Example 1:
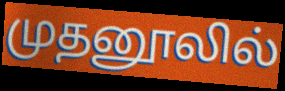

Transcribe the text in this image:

முதனூலில்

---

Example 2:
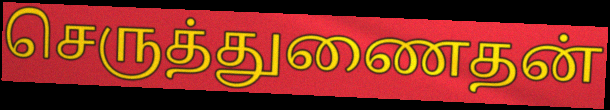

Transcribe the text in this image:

செருத்துணைதன்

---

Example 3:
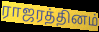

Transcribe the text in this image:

ராஜரத்தினம்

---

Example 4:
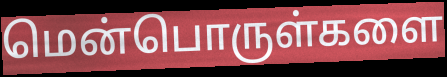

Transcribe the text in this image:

மென்பொருள்களை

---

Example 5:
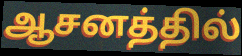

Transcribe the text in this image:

ஆசனத்தில்